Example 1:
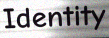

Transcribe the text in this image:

Identity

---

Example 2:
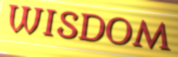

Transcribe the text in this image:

WISDOM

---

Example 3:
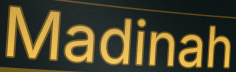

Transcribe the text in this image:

Madinah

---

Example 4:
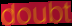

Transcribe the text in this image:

doubt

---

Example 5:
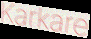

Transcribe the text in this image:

Karkare